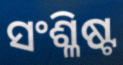
ସଂଶ୍ଳିଷ୍ଟ